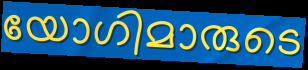
യോഗിമാരുടെ